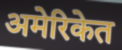
अमेरिकेत